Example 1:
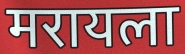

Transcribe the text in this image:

मरायला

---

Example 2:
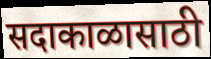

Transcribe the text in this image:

सदाकाळासाठी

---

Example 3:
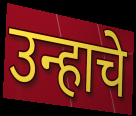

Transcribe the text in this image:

उन्हाचे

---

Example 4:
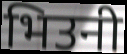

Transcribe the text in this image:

भिउनी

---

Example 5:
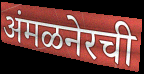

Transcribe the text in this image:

अंमळनेरची